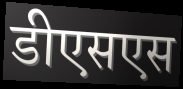
डीएसएस